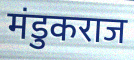
मंडुकराज